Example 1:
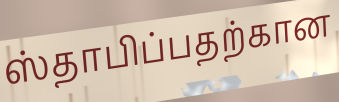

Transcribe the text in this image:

ஸ்தாபிப்பதற்கான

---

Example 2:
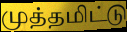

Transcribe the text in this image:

முத்தமிட்டு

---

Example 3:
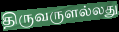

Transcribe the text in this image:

திருவருளல்லது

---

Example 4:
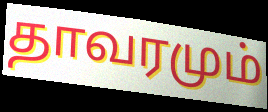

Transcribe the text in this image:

தாவரமும்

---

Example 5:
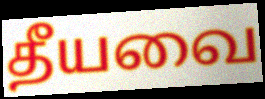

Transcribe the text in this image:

தீயவை